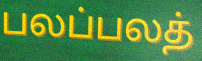
பலப்பலத்